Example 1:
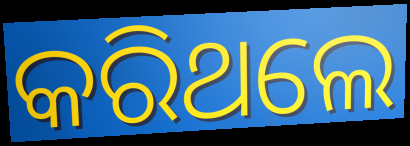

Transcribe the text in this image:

କରିଥଲେ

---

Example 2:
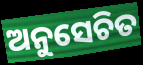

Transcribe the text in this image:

ଅନୁସେଚିତ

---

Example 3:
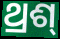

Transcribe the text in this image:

ଥ୍ରଶ୍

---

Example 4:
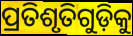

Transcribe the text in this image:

ପ୍ରତିଶୃତିଗୁଡ଼ିକୁ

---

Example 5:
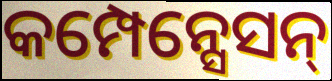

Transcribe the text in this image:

କମ୍ପେନ୍ସେସନ୍